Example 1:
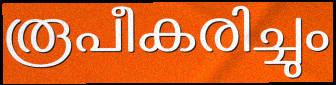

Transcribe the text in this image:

രൂപീകരിച്ചും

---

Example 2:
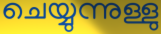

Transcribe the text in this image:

ചെയ്യുന്നുള്ളു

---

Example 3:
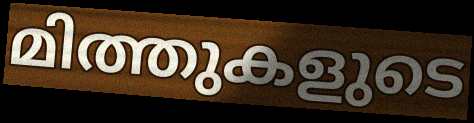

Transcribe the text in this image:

മിത്തുകളുടെ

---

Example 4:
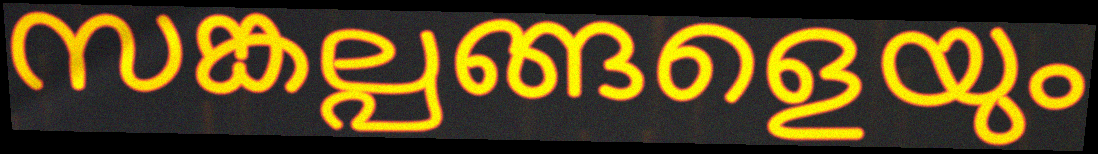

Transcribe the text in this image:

സങ്കല്പങ്ങളെയും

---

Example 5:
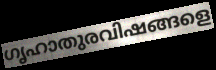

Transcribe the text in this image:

ഗൃഹാതുരവിഷങ്ങളെ